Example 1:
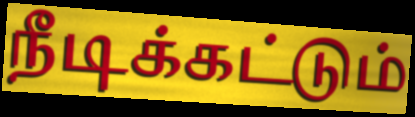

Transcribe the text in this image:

நீடிக்கட்டும்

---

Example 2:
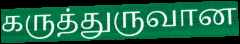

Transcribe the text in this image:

கருத்துருவான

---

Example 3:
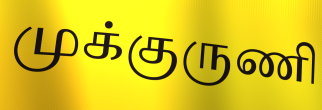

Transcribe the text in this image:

முக்குருணி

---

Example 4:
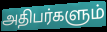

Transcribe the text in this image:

அதிபர்களும்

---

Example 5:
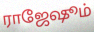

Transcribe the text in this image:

ராஜேஷூம்